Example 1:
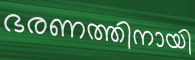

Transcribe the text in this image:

ഭരണത്തിനായി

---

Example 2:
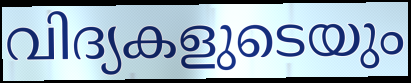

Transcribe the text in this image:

വിദ്യകളുടെയും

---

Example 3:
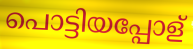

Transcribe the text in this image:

പൊട്ടിയപ്പോള്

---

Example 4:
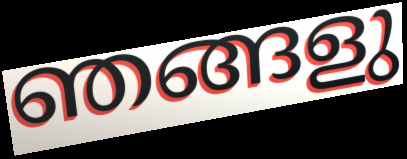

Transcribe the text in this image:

ഞങ്ങളു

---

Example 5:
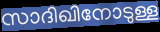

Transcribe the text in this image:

സാദിഖിനോടുള്ള